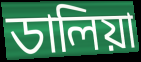
ডালিয়া